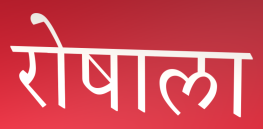
रोषाला